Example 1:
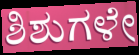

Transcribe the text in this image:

ಶಿಶುಗಳೇ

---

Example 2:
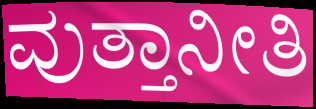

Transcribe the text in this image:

ವುತ್ತಾನೀತಿ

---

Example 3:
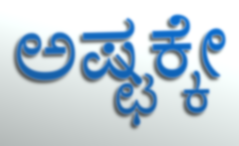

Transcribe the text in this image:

ಅಷ್ಟಕ್ಕೇ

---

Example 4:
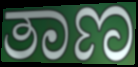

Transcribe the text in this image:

ತಾಣ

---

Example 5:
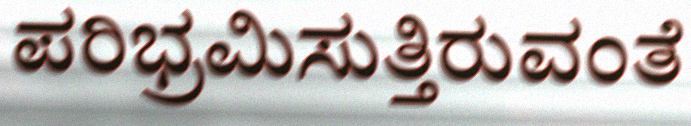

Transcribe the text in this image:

ಪರಿಭ್ರಮಿಸುತ್ತಿರುವಂತೆ